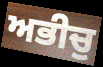
ਅਭੀਚੁ